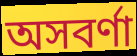
অসবর্ণা